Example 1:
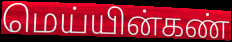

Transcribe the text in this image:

மெய்யின்கண்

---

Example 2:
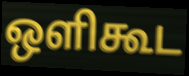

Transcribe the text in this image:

ஒளிகூட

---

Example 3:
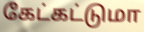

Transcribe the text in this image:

கேட்கட்டுமா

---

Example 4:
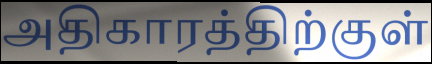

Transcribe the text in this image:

அதிகாரத்திற்குள்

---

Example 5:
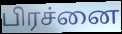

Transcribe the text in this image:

பிரச்னை